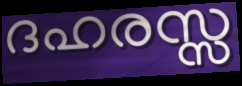
ദഹരസ്സ